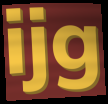
ijg